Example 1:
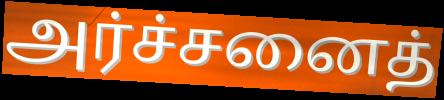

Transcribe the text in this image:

அர்ச்சனைத்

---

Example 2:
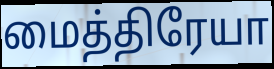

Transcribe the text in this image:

மைத்திரேயா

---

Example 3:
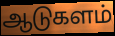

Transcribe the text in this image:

ஆடுகளம்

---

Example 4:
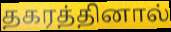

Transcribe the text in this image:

தகரத்தினால்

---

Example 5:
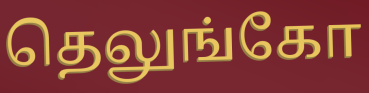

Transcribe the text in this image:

தெலுங்கோ